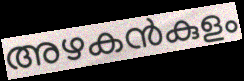
അഴകൻകുളം